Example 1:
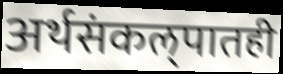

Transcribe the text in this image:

अर्थसंकल्पातही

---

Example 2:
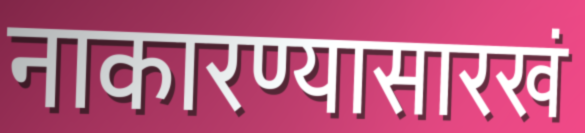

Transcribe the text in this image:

नाकारण्यासारखं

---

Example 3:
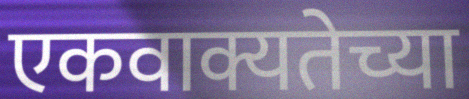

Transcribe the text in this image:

एकवाक्यतेच्या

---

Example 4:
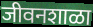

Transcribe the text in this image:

जीवनशाळा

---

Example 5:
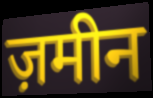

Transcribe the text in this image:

ज़मीन